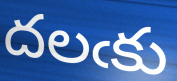
దలఁకు